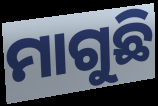
ମାଗୁଛି